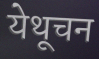
येथूचन